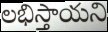
లభిస్తాయని